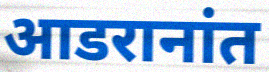
आडरानांत